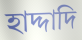
হাদ্দাদি